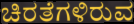
ಚಿರತೆಗಳಿರುವ